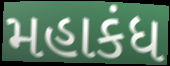
મહાકંધ